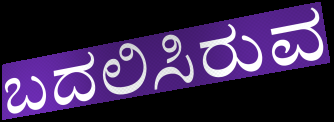
ಬದಲಿಸಿರುವ